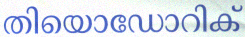
തിയൊഡോറിക്